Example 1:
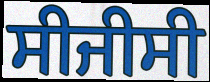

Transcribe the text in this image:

ਸੀਜੀਸੀ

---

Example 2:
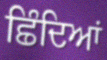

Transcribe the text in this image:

ਛਿੰਦਿਆਂ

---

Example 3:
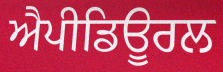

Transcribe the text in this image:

ਐਪੀਡਿਊਰਲ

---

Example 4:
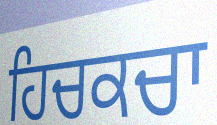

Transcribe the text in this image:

ਹਿਚਕਚਾ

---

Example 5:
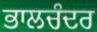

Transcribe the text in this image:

ਭਾਲਚੰਦਰ